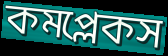
কমপ্লেকস